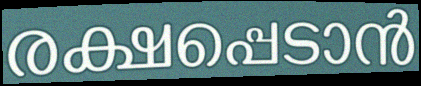
രക്ഷപ്പെടാൻ